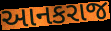
આનકરાજ